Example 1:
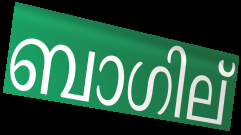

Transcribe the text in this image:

ബാഗില്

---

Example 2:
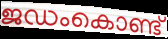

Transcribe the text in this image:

ജഡംകൊണ്ട്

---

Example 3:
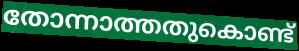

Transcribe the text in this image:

തോന്നാത്തതുകൊണ്ട്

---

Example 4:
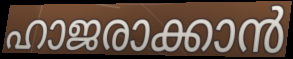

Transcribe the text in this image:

ഹാജരാക്കാൻ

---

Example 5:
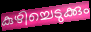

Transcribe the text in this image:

കുഴിച്ചെടുക്കും